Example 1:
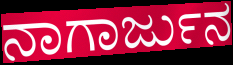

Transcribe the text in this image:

ನಾಗಾರ್ಜುನ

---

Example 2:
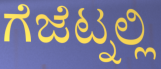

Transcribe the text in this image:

ಗೆಜೆಟ್ನಲ್ಲಿ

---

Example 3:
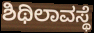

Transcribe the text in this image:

ಶಿಥಿಲಾವಸ್ಥೆ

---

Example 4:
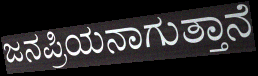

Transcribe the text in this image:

ಜನಪ್ರಿಯನಾಗುತ್ತಾನೆ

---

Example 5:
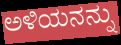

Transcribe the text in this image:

ಅಳಿಯನನ್ನು